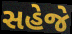
સહેજે